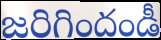
జరిగిందండీ